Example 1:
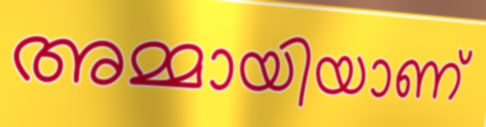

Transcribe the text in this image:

അമ്മായിയാണ്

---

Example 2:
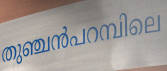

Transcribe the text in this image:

തുഞ്ചൻപറമ്പിലെ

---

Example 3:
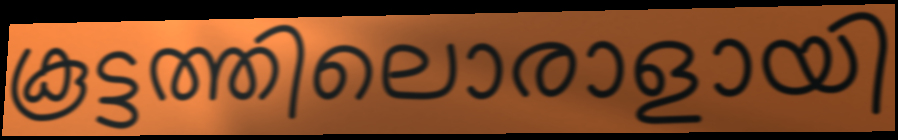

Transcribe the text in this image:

കൂട്ടത്തിലൊരാളായി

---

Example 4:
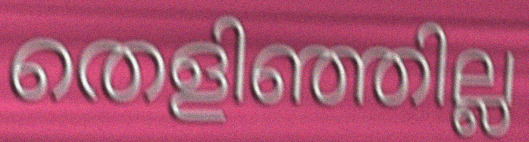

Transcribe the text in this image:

തെളിഞ്ഞില്ല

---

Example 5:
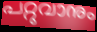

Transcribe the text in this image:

പറ്റുവാനും